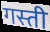
गस्ती